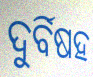
ଦୁର୍ବିଷହ